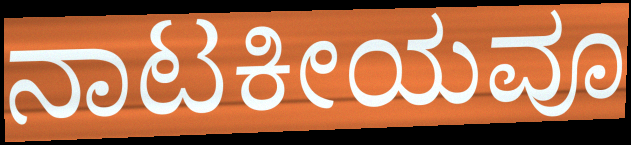
ನಾಟಕೀಯವೂ